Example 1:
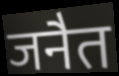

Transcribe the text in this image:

जनैत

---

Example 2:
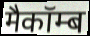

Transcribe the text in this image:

मैकॉम्ब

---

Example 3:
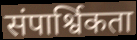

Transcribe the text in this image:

संपार्श्विकता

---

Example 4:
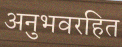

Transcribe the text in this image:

अनुभवरहित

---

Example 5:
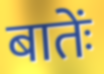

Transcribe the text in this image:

बातेंः